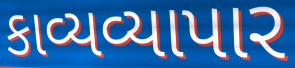
કાવ્યવ્યાપાર